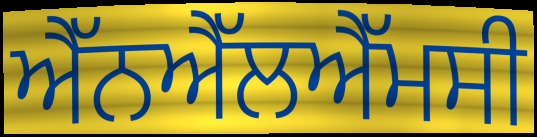
ਐੱਨਐੱਲਐੱਮਸੀ